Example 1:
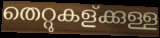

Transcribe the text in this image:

തെറ്റുകള്ക്കുള്ള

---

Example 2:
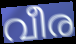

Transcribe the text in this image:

വീര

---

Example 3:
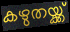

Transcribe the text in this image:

കഴുതയ്ക്ക്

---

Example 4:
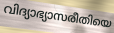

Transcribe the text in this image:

വിദ്യാഭ്യാസരീതിയെ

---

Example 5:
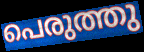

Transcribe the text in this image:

പെരുത്തു